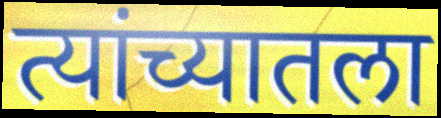
त्यांच्यातला